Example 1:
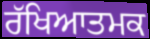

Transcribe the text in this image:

ਰੱਖਿਆਤਮਕ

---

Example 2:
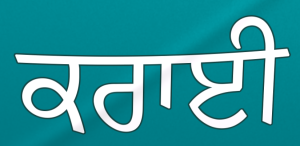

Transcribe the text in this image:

ਕਰਾਈ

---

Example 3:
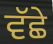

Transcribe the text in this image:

ਵੱਛੇ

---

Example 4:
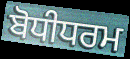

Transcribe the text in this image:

ਬੋਧੀਧਰਮ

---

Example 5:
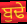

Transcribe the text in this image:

ਬੁਢੇ